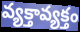
వ్యక్తావ్యక్తం